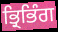
ਭ੍ਰਿਭਿੰਗ